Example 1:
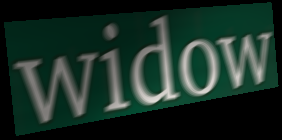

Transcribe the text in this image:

widow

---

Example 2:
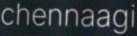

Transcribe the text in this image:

chennaagi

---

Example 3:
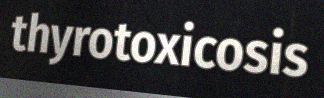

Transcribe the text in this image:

thyrotoxicosis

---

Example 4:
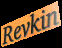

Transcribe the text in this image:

Revkin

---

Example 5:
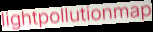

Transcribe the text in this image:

lightpollutionmap